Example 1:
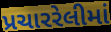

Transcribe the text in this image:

પ્રચારરેલીમાં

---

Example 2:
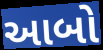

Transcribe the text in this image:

આબો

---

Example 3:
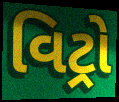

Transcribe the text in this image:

વિટ્રો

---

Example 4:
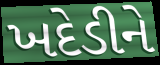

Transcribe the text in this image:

ખદેડીને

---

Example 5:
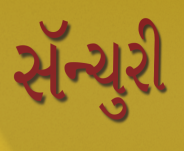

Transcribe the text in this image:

સૅન્ચુરી